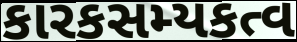
કારકસમ્યકત્વ